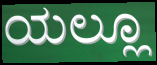
ಯಲ್ಲೂ